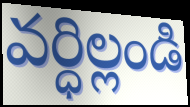
వర్ధిల్లండి